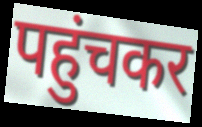
पहुंचकर